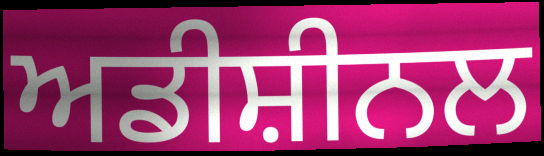
ਅਡੀਸ਼ੀਨਲ